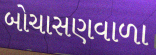
બોચાસણવાળા